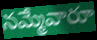
నమ్మేవారూ